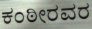
ಕಂಠೀರವರ